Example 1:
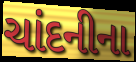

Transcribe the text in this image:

ચાંદનીના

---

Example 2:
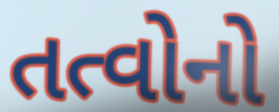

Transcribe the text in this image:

તત્વોનો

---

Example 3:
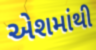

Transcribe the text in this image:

એશમાંથી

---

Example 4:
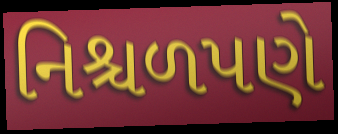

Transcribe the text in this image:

નિશ્ચળપણે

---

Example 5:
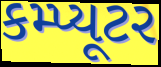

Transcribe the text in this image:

કમ્પ્યૂટર